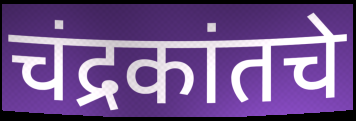
चंद्रकांतचे